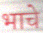
भाचे